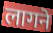
लागने